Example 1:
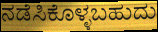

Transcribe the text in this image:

ನಡೆಸಿಕೊಳ್ಳಬಹುದು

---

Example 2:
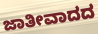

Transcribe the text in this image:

ಜಾತೀವಾದದ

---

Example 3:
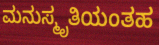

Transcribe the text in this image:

ಮನುಸ್ಮೃತಿಯಂತಹ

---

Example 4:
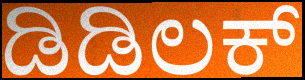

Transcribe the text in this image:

ಡಿಡಿಲಕ್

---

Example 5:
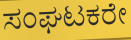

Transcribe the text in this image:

ಸಂಘಟಕರೇ